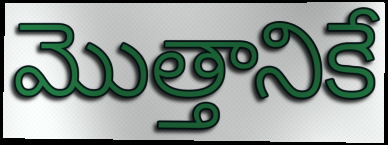
మొత్తానికే